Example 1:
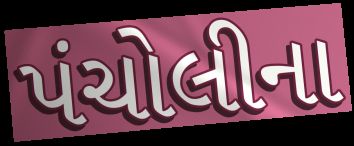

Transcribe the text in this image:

પંચોલીના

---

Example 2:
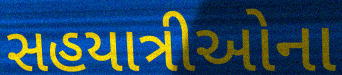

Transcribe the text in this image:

સહયાત્રીઓના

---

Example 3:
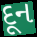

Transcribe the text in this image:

દૂન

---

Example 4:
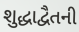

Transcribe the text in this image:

શુદ્ધાદ્વૈતની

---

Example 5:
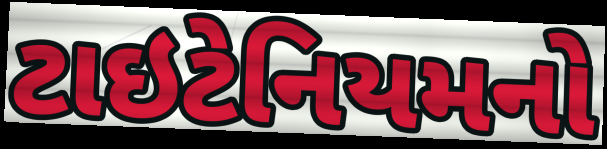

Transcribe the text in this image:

ટાઇટેનિયમનો